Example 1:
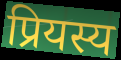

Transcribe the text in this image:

प्रियस्य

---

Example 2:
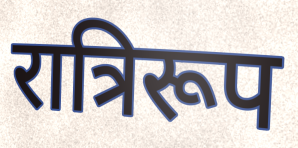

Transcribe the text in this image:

रात्रिरूप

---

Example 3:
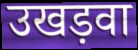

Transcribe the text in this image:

उखड़वा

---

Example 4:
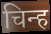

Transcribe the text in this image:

चिन्ह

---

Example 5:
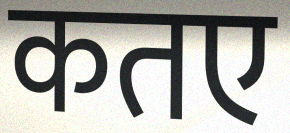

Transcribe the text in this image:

कतए